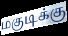
மகுடிக்கு